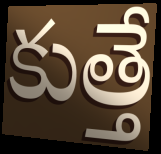
కుత్తే